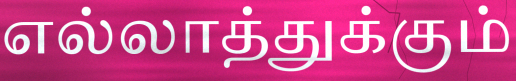
எல்லாத்துக்கும்